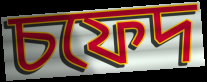
চফেদ